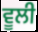
ਵੂਲੀ